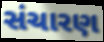
સંચારણ